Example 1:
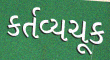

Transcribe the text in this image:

કર્તવ્યચૂક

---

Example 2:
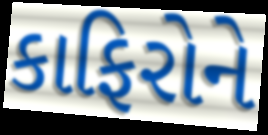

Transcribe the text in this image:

કાફિરોને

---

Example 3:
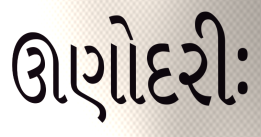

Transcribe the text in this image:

ઊણોદરીઃ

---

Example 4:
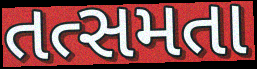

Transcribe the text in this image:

તત્સમતા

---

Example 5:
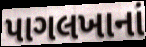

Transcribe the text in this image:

પાગલખાનાં